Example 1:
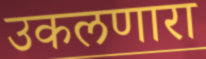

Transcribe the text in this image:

उकलणारा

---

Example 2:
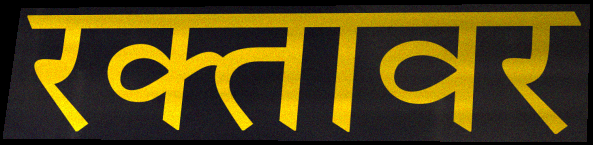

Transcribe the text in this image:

रक्तावर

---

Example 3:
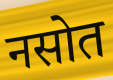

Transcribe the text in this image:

नसोत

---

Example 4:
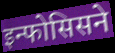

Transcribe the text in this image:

इन्फोसिसने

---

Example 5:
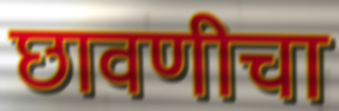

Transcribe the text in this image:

छावणीचा